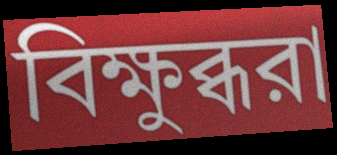
বিক্ষুব্ধরা